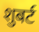
शुबर्ट